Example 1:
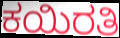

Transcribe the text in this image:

ಕಯಿರತಿ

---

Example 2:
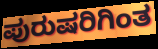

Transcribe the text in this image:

ಪುರುಷರಿಗಿಂತ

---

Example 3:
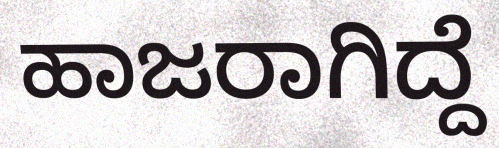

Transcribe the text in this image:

ಹಾಜರಾಗಿದ್ದೆ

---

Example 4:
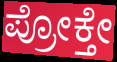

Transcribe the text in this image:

ಪ್ರೋಕ್ತೇ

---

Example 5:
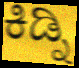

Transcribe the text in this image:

ಕಿಡ್ನಿ